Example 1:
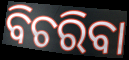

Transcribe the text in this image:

ବିଚରିବା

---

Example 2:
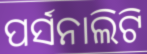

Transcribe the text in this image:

ପର୍ସନାଲିଟି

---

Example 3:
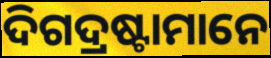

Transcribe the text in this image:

ଦିଗଦ୍ରଷ୍ଟାମାନେ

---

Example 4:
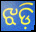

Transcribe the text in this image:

ଝଡ଼ି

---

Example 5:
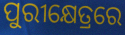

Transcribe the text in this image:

ପୁରୀକ୍ଷେତ୍ରରେ